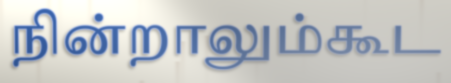
நின்றாலும்கூட